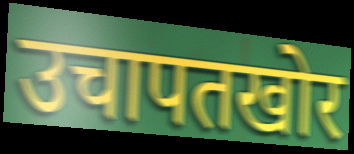
उचापतखोर